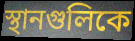
স্থানগুলিকে